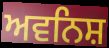
ਅਵਨਿਸ਼